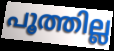
പൂത്തില്ല